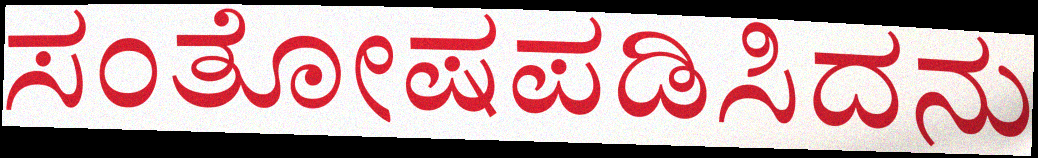
ಸಂತೋಷಪಡಿಸಿದನು